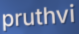
pruthvi